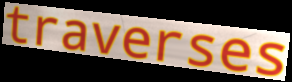
traverses